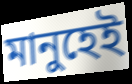
মানুহেই